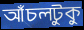
আঁচলটুকু